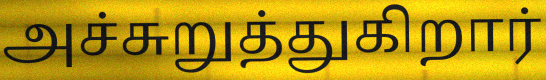
அச்சுறுத்துகிறார்